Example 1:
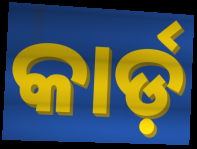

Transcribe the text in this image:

କାର୍ଡ଼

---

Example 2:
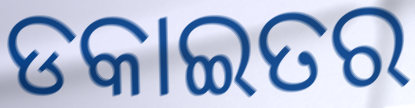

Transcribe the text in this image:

ଡକାଇତର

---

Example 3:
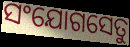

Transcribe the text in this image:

ସଂଯୋଗସେତୁ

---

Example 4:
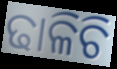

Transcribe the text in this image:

ଢାଳିଚି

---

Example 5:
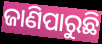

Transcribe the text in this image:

ଜାଣିପାରୁଛି